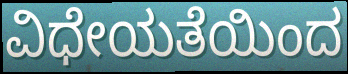
ವಿಧೇಯತೆಯಿಂದ